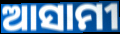
ଆସାମୀ